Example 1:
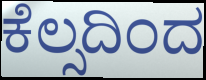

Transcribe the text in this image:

ಕೆಲ್ಸದಿಂದ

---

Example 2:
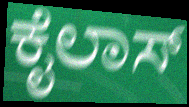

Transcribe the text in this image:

ಕೈಲಾಸ್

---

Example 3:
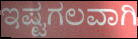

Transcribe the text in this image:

ಇಷ್ಟಗಲವಾಗಿ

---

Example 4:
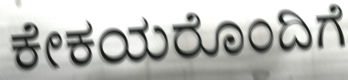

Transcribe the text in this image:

ಕೇಕಯರೊಂದಿಗೆ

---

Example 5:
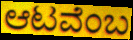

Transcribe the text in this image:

ಆಟವೆಂಬ